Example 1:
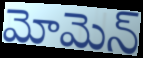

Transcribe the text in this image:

మోమెన్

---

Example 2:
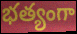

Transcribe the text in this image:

భత్యంగా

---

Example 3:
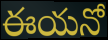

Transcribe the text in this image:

ఈయనో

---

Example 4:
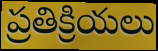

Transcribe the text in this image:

ప్రతిక్రియలు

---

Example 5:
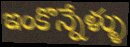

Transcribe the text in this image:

ఇంకొన్నేళ్ళు